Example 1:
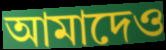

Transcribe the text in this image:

আমাদেও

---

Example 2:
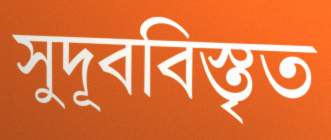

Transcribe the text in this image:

সুদূববিস্তৃত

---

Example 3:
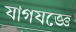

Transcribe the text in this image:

যাগযজ্ঞে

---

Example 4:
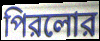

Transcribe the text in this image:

পিরলোর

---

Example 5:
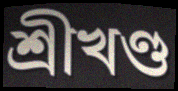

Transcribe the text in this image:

শ্রীখণ্ড